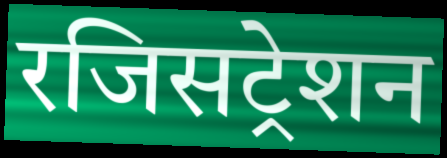
रजिसट्रेशन